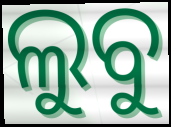
ଲୁବୁ